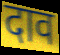
दाव